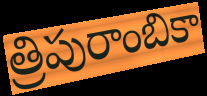
త్రిపురాంబికా